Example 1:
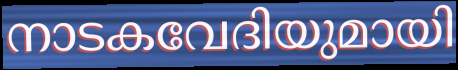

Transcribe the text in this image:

നാടകവേദിയുമായി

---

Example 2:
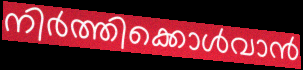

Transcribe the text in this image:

നിർത്തിക്കൊൾവാൻ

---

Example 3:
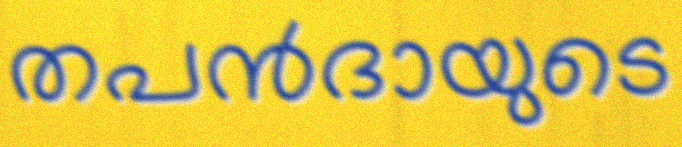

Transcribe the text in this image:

തപൻദായുടെ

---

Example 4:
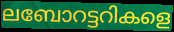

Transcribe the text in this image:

ലബോറട്ടറികളെ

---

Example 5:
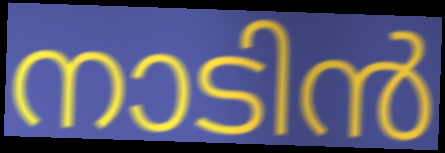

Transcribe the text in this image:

നാടിൻ